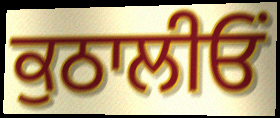
ਕੁਠਾਲੀਓਂ